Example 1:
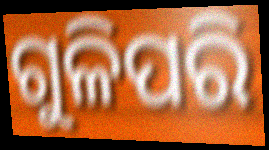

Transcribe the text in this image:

ଗୁଳିପରି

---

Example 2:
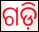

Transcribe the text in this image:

ଗଡ଼ି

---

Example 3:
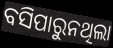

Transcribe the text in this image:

ବସିପାରୁନଥିଲା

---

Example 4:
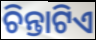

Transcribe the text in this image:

ଚିନ୍ତାଟିଏ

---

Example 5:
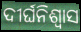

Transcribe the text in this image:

ଦୀର୍ଘନିଶ୍ବାସ